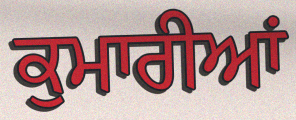
ਕੁਮਾਰੀਆਂ